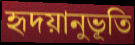
হৃদয়ানুভূতি